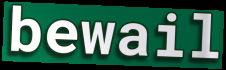
bewail